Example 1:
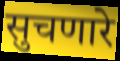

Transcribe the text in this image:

सुचणारे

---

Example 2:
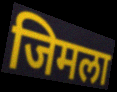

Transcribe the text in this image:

जिमला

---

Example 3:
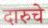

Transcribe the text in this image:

दारुचे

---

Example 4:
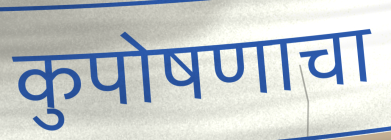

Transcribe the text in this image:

कुपोषणाचा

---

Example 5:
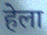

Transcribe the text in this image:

हेला